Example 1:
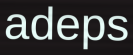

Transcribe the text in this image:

adeps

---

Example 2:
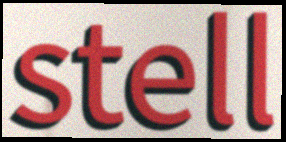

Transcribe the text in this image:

stell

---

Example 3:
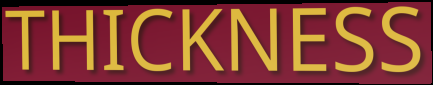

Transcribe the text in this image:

THICKNESS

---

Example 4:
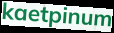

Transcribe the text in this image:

kaetpinum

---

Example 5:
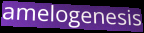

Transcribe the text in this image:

amelogenesis